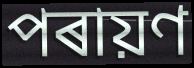
পৰায়ণ